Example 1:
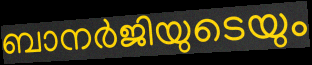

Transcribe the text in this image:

ബാനർജിയുടെയും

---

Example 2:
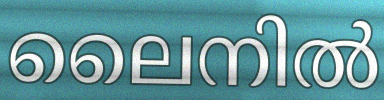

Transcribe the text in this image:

ലൈനിൽ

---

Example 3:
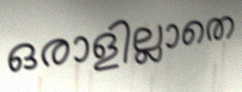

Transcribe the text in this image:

ഒരാളില്ലാതെ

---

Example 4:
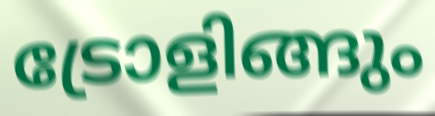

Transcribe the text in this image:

ട്രോളിങ്ങും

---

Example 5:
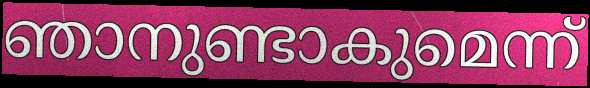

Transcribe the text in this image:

ഞാനുണ്ടാകുമെന്ന്